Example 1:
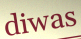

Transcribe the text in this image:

diwas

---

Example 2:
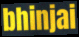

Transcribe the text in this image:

bhinjai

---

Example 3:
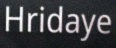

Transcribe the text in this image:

Hridaye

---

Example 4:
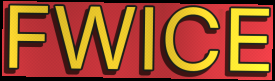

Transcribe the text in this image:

FWICE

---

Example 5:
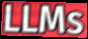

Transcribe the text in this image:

LLMs